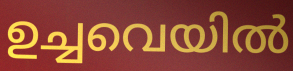
ഉച്ചവെയിൽ